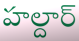
హల్దార్